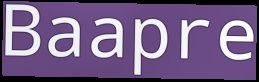
Baapre